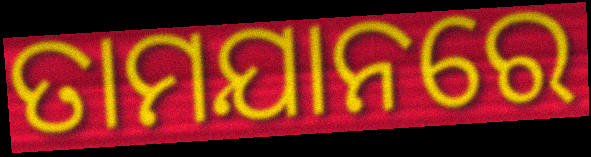
ତାମଯାନରେ